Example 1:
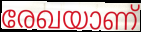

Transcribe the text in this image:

രേഖയാണ്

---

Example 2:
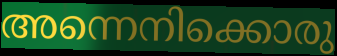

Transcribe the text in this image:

അന്നെനിക്കൊരു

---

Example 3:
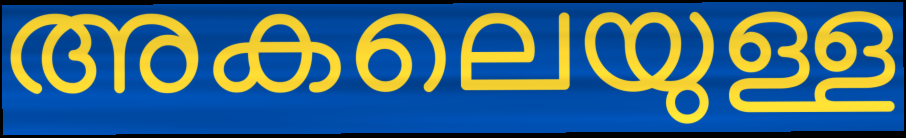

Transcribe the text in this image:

അകലെയുള്ള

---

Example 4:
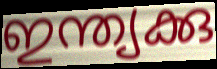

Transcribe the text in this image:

ഇന്ത്യക്കു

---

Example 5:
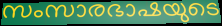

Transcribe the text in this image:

സംസാരഭാഷയുടെ